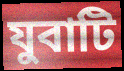
যুবাটি